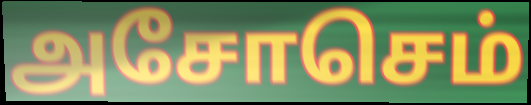
அசோசெம்